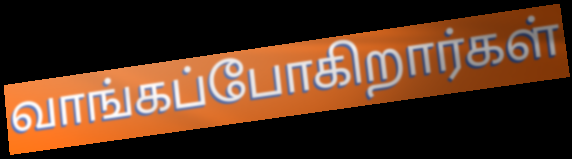
வாங்கப்போகிறார்கள்